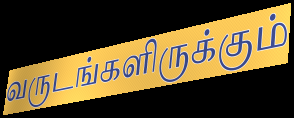
வருடங்களிருக்கும்